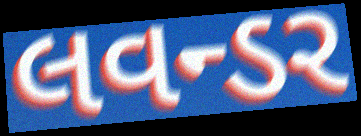
લવન્ડર